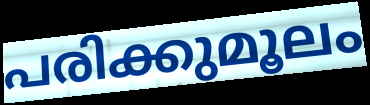
പരിക്കുമൂലം